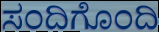
ಸಂದಿಗೊಂದಿ